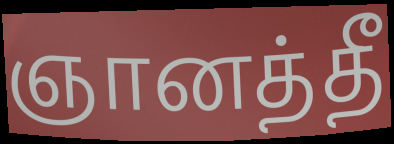
ஞானத்தீ